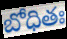
బోధితః